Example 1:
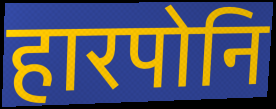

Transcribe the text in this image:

हारपोनि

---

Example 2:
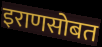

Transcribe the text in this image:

इराणसोबत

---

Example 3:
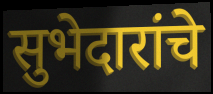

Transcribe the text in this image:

सुभेदारांचे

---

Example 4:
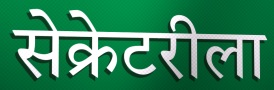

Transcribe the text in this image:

सेक्रेटरीला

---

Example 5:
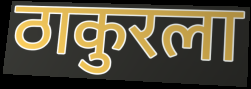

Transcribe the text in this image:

ठाकुरला